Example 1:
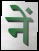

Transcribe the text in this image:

नें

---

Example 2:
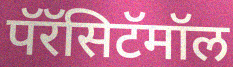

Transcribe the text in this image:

पॅरॅसिटॅमॉल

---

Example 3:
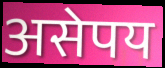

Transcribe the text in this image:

असेपय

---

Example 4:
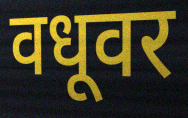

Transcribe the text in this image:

वधूवर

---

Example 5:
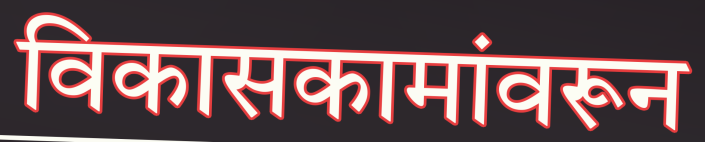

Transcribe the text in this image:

विकासकामांवरून